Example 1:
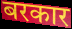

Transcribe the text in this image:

बरकार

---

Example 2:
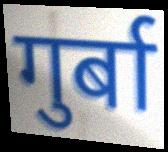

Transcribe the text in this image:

गुर्बा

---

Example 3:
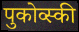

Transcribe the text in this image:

पुकोव्स्की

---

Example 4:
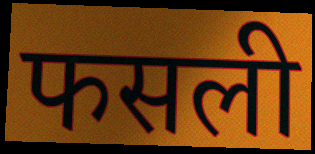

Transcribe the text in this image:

फसली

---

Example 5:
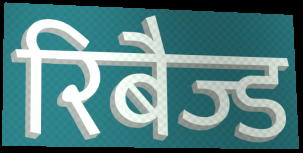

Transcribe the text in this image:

रिबैज्ड